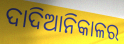
ଦାଦିଆନିକାଳର